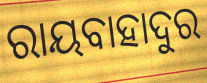
ରାୟବାହାଦୁର